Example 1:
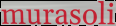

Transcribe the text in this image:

murasoli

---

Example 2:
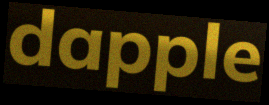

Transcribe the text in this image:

dapple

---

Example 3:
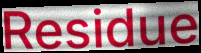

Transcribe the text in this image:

Residue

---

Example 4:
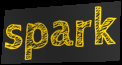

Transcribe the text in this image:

spark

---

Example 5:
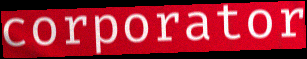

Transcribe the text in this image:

corporator